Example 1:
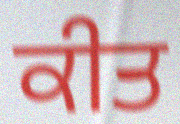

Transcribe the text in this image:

ਕੀਤ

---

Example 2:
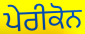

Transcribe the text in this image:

ਪੇਰੀਕੋਨ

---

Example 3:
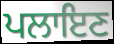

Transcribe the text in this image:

ਪਲਾਇਣ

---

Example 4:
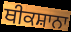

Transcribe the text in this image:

ਥੀਕਸ਼ਾਨਾ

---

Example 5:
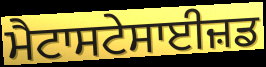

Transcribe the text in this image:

ਮੈਟਾਸਟੇਸਾਈਜ਼ਡ